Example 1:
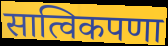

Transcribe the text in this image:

सात्विकपणा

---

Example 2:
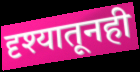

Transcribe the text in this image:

दृश्यातूनही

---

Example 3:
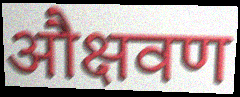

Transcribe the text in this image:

औक्षवण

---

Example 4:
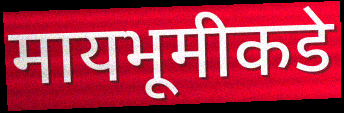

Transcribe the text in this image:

मायभूमीकडे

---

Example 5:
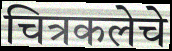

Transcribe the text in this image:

चित्रकलेचे